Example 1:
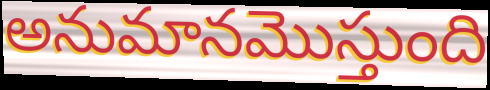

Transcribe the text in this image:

అనుమానమొస్తుంది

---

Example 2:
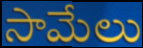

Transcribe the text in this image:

సామేలు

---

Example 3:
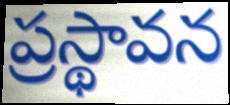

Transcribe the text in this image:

ప్రస్థావన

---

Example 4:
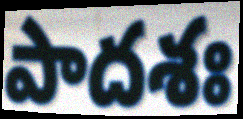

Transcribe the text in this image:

పాదశః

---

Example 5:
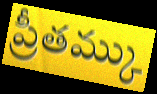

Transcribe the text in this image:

ప్రీతమ్కు